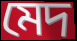
মেদ